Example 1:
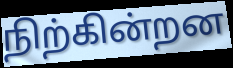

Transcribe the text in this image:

நிற்கின்றன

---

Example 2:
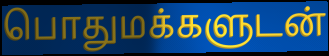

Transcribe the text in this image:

பொதுமக்களுடன்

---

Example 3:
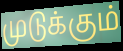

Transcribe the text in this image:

முடுக்கும்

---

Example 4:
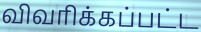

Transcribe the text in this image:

விவரிக்கப்பட்ட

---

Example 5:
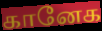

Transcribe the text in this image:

கானேக